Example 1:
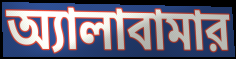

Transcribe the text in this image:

অ্যালাবামার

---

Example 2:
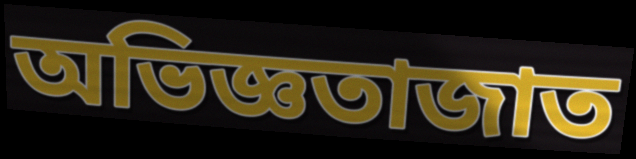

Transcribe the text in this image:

অভিজ্ঞতাজাত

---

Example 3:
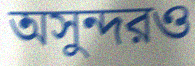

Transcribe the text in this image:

অসুন্দরও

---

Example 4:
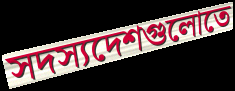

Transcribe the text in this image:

সদস্যদেশগুলোতে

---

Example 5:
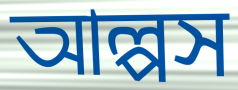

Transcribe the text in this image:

আল্পস